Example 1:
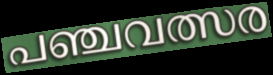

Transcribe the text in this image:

പഞ്ചവത്സര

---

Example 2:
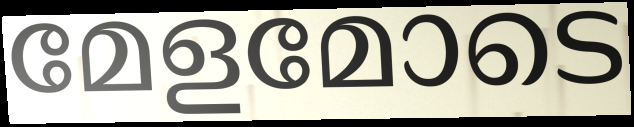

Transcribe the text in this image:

മേളമോടെ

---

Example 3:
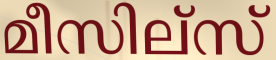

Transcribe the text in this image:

മീസില്സ്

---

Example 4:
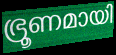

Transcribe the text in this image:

ഭ്രൂണമായി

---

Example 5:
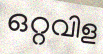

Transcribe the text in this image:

ഒറ്റവിള